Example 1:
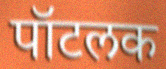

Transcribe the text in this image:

पॉटलक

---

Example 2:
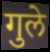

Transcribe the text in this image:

गुले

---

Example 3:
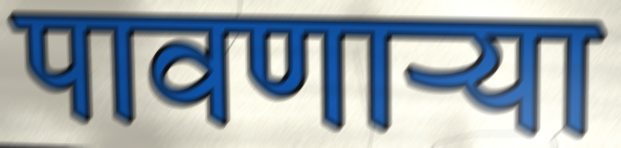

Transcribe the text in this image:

पावणाऱ्या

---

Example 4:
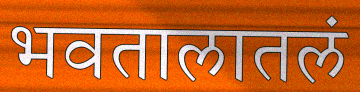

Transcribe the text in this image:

भवतालातलं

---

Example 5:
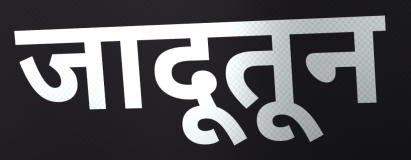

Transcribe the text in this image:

जादूतून